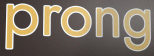
prong